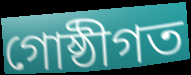
গোষ্ঠীগত